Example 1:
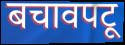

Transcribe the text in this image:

बचावपटू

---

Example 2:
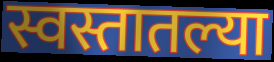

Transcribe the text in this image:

स्वस्तातल्या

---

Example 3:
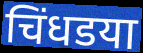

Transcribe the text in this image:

चिंधडया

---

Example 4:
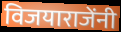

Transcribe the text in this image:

विजयाराजेंनी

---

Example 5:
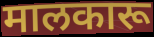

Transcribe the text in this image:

मालकारू